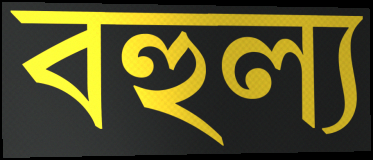
বহুল্য